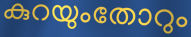
കുറയുംതോറും